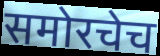
समोरचेच